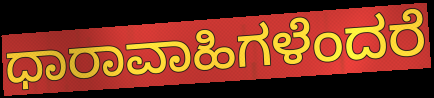
ಧಾರಾವಾಹಿಗಳೆಂದರೆ